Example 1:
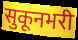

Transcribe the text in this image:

सुकूनभरी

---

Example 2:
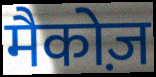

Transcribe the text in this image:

मैकोज़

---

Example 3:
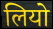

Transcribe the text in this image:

लियो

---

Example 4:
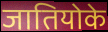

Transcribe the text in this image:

जातियोके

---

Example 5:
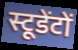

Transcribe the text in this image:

स्टूडेंटों